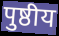
पुष्ठीय